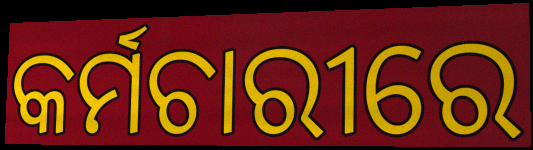
କର୍ମଚାରୀରେ